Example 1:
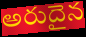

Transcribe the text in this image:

అరుదైన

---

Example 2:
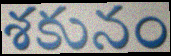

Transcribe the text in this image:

శకునం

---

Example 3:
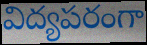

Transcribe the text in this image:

విద్యపరంగా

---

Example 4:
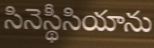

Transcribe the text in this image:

సినెస్థీసియాను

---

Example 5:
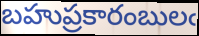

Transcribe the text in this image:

బహుప్రకారంబులఁ